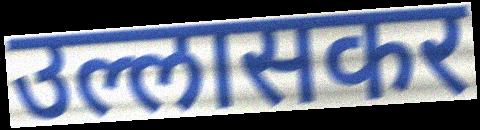
उल्लासकर